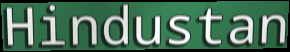
Hindustan